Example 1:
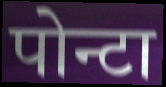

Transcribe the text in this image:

पोन्टा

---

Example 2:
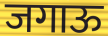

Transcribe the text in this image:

जगाऊ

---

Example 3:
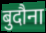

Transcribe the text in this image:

बुदौना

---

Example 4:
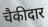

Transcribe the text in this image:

चैकीदार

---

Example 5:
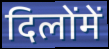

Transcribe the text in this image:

दिलोंमें